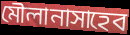
মৌলানাসাহেব